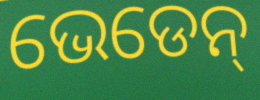
ଭେଡେନ୍